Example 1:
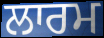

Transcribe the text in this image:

ਲਾਰਮ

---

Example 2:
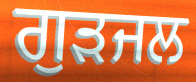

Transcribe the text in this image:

ਗੁੜਜਲ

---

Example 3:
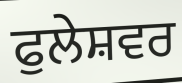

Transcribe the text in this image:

ਫੁਲੇਸ਼ਵਰ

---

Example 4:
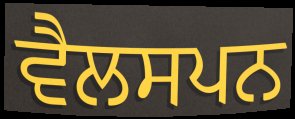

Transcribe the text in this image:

ਵੈਲਸਪਨ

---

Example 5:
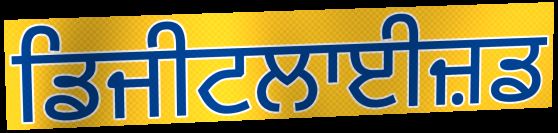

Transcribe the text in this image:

ਡਿਜੀਟਲਾਈਜ਼ਡ